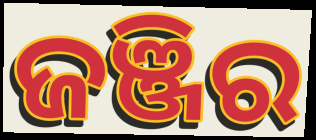
ଜଞ୍ଜିର